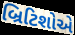
બ્રિટિશોએ